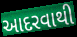
આદરવાથી